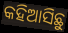
କହିଆସିଛୁ